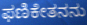
ಫಣಿಕೇತನನು